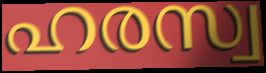
ഹരസ്വ